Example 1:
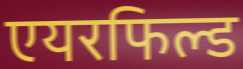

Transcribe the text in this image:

एयरफिल्ड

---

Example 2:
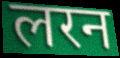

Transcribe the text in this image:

लरन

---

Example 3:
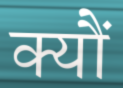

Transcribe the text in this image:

क्यौं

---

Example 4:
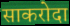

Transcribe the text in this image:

साकरोदा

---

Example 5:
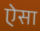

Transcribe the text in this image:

ऐेसा